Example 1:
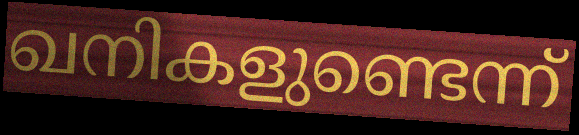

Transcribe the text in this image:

ഖനികളുണ്ടെന്ന്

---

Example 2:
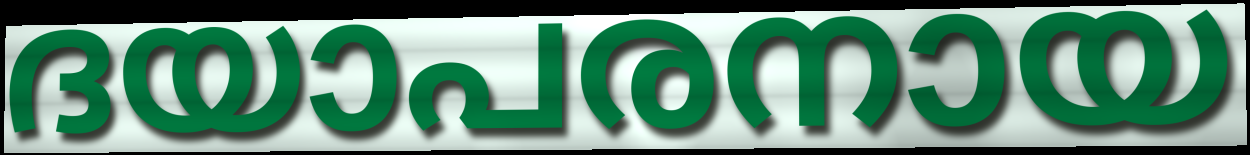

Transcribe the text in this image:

ദയാപരനായ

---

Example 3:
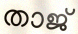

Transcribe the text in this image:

താജ്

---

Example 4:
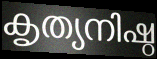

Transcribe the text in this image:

കൃത്യനിഷ്ഠ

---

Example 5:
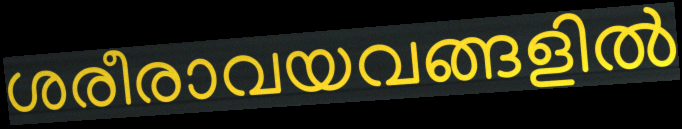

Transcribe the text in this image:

ശരീരാവയവങ്ങളിൽ